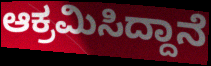
ಆಕ್ರಮಿಸಿದ್ದಾನೆ